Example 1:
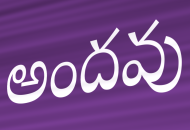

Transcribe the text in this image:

అందవు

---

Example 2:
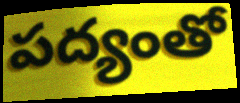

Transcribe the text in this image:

పద్యంతో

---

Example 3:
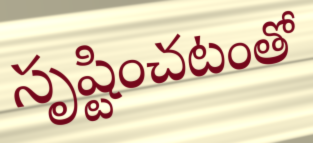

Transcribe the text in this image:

సృష్టించటంతో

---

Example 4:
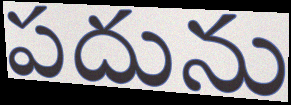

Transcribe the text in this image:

పదును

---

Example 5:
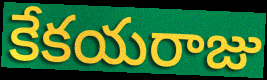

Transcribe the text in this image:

కేకయరాజు